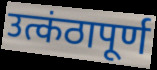
उत्कंठापूर्ण